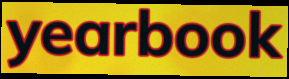
yearbook